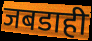
जबडाही